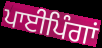
ਪਾਈਪਿੰਗਾਂ